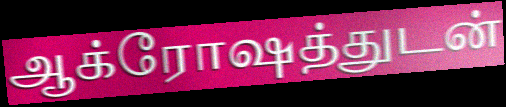
ஆக்ரோஷத்துடன்